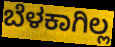
ಬೆಳಕಾಗಿಲ್ಲ